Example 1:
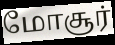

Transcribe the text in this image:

மோசூர்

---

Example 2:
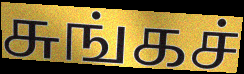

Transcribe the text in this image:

சுங்கச்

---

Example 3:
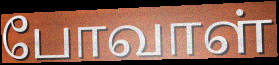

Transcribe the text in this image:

போவாள்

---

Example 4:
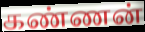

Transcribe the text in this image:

கண்ணன்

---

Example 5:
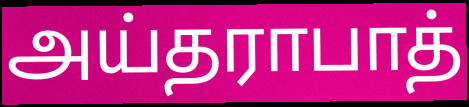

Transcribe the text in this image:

அய்தராபாத்